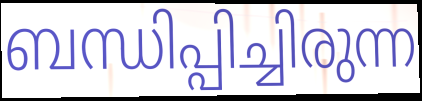
ബന്ധിപ്പിച്ചിരുന്ന